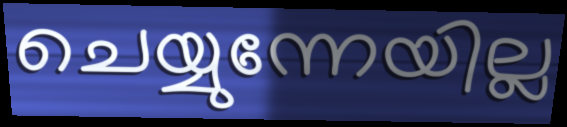
ചെയ്യുന്നേയില്ല